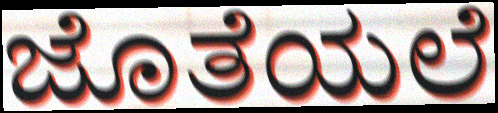
ಜೊತೆಯಲೆ